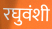
रघुवंशी